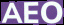
AEO